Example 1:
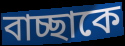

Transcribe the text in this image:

বাচ্ছাকে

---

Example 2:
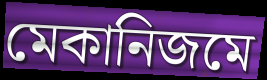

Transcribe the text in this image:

মেকানিজমে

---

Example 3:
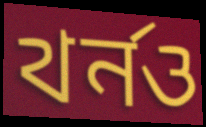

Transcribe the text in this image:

থর্নও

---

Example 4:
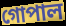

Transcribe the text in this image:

গোপাল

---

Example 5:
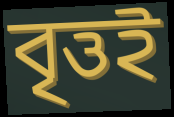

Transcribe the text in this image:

বৃত্তই